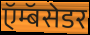
ऍम्बॅसेडर